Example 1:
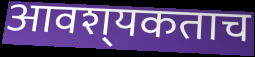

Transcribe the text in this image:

आवश्यकताच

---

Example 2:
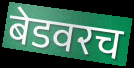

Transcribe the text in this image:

बेडवरच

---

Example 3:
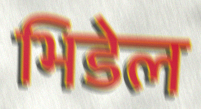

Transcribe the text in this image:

भिडेल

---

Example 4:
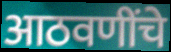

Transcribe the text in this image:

आठवणींचे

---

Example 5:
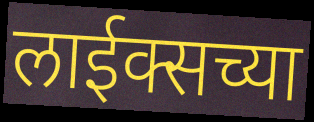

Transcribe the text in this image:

लाईक्सच्या